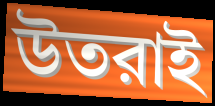
উতরাই